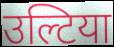
उल्टिया